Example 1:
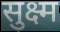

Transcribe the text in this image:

सुक्ष्म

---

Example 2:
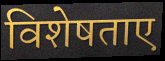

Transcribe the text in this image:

विशेषताए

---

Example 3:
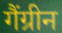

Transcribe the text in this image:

गैंग्रीन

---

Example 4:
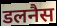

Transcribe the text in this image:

डलनैस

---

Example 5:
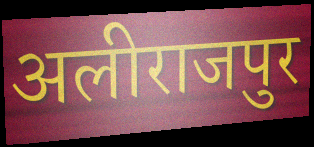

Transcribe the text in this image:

अलीराजपुर